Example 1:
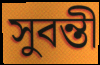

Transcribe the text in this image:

সুবন্তী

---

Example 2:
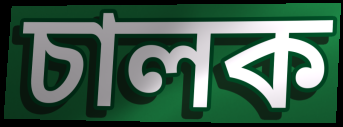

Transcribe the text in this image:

চালক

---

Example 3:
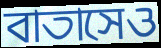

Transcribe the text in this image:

বাতাসেও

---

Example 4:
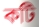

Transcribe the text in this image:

কটি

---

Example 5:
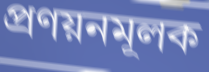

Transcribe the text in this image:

প্রণয়নমূলক